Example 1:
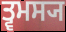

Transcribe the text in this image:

ਤ੍ਵਮਸ੍ਯ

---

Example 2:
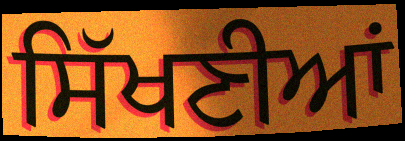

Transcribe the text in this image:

ਸਿੱਖਣੀਆਂ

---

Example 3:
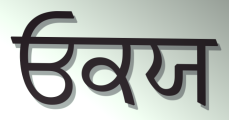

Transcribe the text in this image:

ਓਕਯ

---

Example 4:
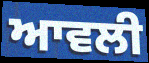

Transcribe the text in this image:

ਆਵਲੀ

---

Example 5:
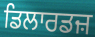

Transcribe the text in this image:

ਡਿਲਾਰਡਜ਼